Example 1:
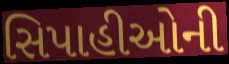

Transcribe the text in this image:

સિપાહીઓની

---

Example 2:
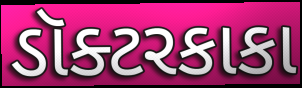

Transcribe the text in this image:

ડૉક્ટરકાકા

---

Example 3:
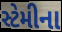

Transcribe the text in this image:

સ્ટેમીના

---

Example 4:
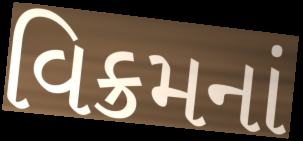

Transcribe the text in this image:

વિક્રમનાં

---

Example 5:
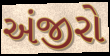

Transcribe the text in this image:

અંજીરો